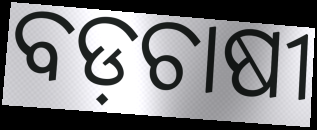
ବଡ଼ଚାଷୀ